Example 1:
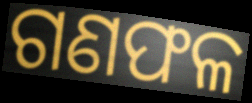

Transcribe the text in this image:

ଗଣଫଳ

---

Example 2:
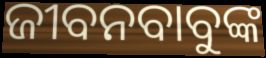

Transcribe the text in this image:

ଜୀବନବାବୁଙ୍କ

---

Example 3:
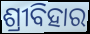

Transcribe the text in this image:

ଶ୍ରୀବିହାର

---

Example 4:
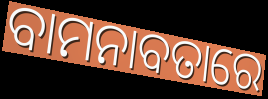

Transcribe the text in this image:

ବାମନାବତାରେ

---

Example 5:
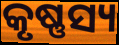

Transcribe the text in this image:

କୃଷ୍ଣସ୍ୟ